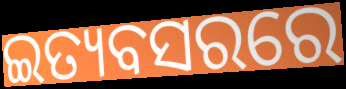
ଇତ୍ୟବସରରେ